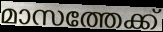
മാസത്തേക്ക്